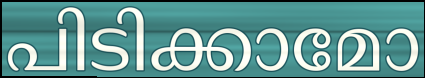
പിടിക്കാമോ